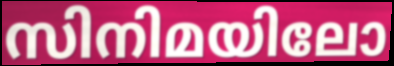
സിനിമയിലോ